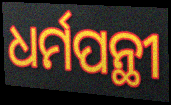
ଧର୍ମପନ୍ଥୀ